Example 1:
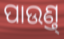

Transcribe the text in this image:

ପାଉଣ୍ତ୍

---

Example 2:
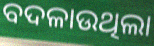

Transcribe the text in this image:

ବଦଳାଉଥିଲା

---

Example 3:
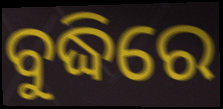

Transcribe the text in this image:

ବୁଦ୍ଧିରେ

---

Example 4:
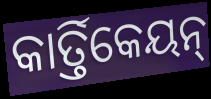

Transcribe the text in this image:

କାର୍ତ୍ତିକେୟନ୍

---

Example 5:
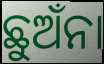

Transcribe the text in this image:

ଛୁଅଁନା